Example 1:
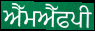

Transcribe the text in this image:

ਐੱਮਐੱਫਪੀ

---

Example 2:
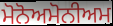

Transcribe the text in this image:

ਮੋਨੋਅਮੋਨੀਅਮ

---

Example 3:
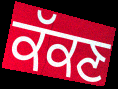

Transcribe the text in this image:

ਕੱਕਣ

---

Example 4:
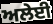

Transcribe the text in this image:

ਅਲੇਈ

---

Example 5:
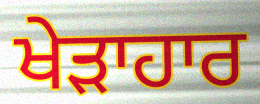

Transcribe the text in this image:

ਖੇੜਾਹਾਰ